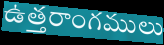
ఉత్తరాంగములు